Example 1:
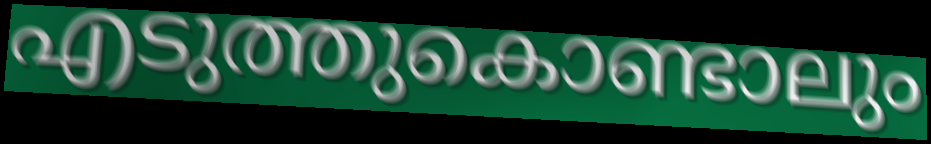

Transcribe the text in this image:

എടുത്തുകൊണ്ടാലും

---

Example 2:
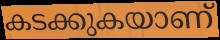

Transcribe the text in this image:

കടക്കുകയാണ്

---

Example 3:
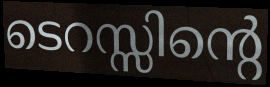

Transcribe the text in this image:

ടെറസ്സിന്റെ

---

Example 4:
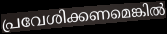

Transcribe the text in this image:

പ്രവേശിക്കണമെങ്കിൽ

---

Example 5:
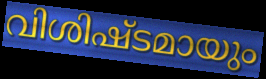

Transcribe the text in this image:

വിശിഷ്ടമായും